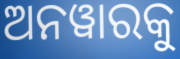
ଅନୱାରକୁ